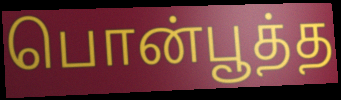
பொன்பூத்த